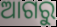
ଆଗରୁ